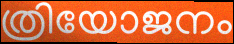
ത്രിയോജനം